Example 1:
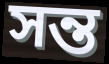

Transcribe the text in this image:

সন্ত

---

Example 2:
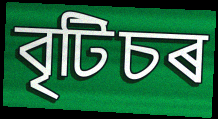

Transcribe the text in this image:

বৃটিচৰ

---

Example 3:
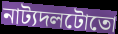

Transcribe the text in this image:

নাট্যদলটোতো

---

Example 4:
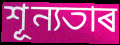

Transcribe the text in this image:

শূন্যতাৰ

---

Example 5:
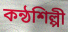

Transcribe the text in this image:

কন্ঠশিল্পী